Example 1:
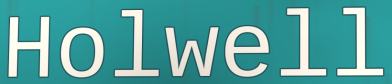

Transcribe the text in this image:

Holwell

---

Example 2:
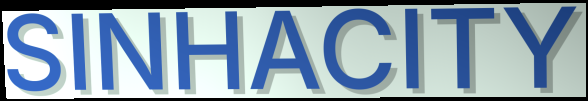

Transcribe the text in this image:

SINHACITY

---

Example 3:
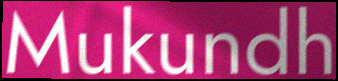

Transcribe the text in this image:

Mukundh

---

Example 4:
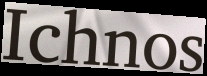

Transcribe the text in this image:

Ichnos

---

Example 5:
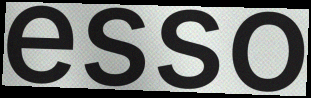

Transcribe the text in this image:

esso